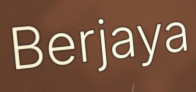
Berjaya